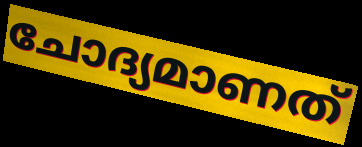
ചോദ്യമാണത്